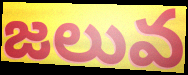
జలువ